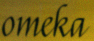
omeka